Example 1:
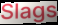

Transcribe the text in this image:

Slags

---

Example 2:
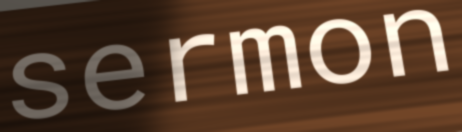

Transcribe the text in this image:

sermon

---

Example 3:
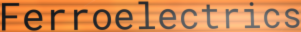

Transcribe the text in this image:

Ferroelectrics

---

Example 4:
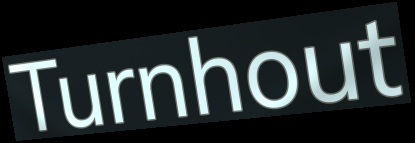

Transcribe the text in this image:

Turnhout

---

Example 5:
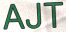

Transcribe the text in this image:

AJT